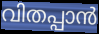
വിതപ്പാൻ